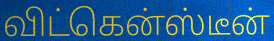
விட்கென்ஸ்டீன்